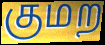
குமற